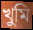
খুমি